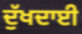
ਦੁੱਖਦਾਈ